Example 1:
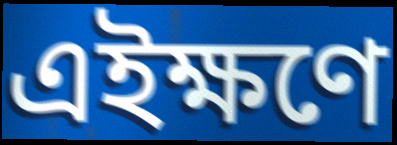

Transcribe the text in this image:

এইক্ষণে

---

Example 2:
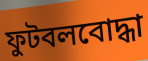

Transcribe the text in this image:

ফুটবলবোদ্ধা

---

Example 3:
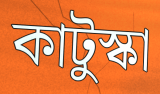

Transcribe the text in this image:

কাটুস্কা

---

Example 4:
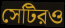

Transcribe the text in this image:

সেটিরও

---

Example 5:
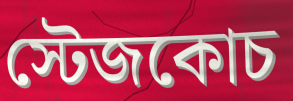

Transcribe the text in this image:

স্টেজকোচ